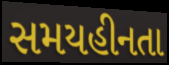
સમયહીનતા